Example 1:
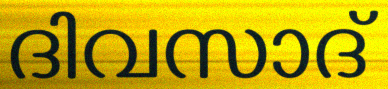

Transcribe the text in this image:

ദിവസാദ്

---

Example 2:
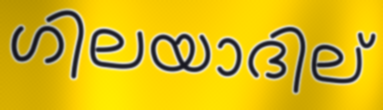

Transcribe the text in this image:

ഗിലയാദില്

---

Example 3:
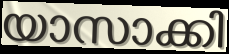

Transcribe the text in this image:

യാസാക്കി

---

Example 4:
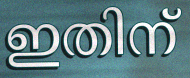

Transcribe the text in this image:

ഇതിന്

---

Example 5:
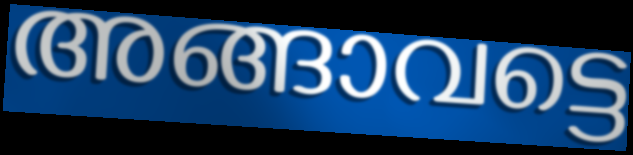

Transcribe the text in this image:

അങ്ങാവട്ടെ